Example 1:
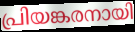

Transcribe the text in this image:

പ്രിയങ്കരനായി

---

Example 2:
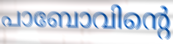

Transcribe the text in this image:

പാബോവിന്റെ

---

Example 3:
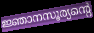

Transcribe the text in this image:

ജ്ഞാനസൂര്യന്റെ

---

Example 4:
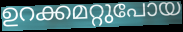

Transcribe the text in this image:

ഉറക്കമറ്റുപോയ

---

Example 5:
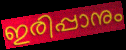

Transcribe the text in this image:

ഇരിപ്പാനും